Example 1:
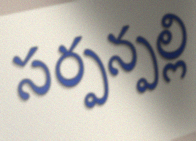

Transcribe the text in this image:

సర్పన్పల్లి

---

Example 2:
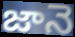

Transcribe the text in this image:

జానె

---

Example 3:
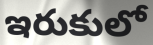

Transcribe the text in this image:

ఇరుకులో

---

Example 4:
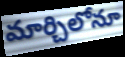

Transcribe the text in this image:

మార్చిలోనూ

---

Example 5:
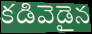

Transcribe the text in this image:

కడివెడైన